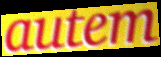
autem